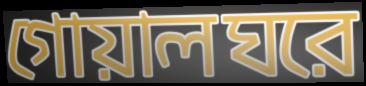
গোয়ালঘরে